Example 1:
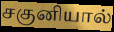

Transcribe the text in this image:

சகுனியால்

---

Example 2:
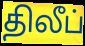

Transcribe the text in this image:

திலீப்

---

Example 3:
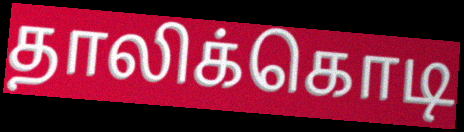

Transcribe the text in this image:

தாலிக்கொடி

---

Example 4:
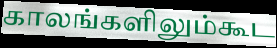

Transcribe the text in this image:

காலங்களிலும்கூட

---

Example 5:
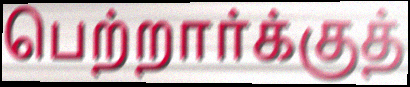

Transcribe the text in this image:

பெற்றார்க்குத்